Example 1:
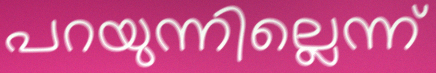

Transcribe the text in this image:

പറയുന്നില്ലെന്ന്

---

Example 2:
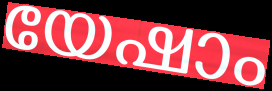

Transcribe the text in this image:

യേഷാം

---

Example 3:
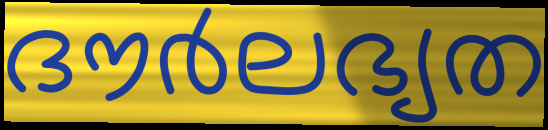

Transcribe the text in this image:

ദൗർലഭ്യത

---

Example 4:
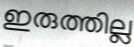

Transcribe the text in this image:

ഇരുത്തില്ല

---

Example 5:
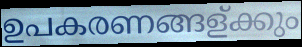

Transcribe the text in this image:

ഉപകരണങ്ങള്ക്കും